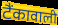
टैंकावाली